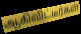
ஆகிவிட்டீர்கள்